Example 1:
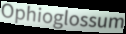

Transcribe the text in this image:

Ophioglossum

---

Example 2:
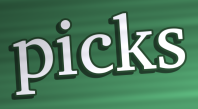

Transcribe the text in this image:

picks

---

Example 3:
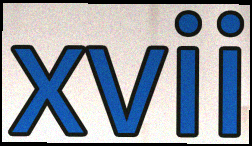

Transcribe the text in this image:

xvii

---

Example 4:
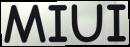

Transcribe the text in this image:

MIUI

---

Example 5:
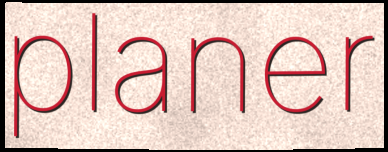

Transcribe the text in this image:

planer